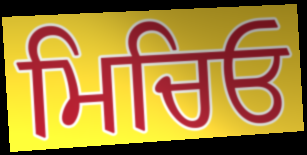
ਮਿਚਿਓ